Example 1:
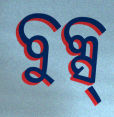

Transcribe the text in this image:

ବୁକ୍ସ୍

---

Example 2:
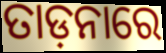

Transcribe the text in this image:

ତାଡ଼ନାରେ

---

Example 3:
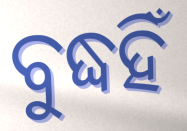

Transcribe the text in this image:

ବୁଦ୍ଧହିଁ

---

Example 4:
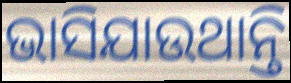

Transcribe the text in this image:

ଭାସିଯାଉଥାନ୍ତି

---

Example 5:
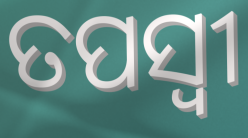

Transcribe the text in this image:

ତପସ୍ବୀ